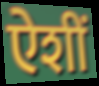
ऐशीं